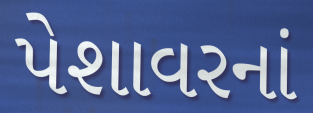
પેશાવરનાં